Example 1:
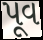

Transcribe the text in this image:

પૂવ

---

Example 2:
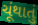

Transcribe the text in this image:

ચૂંથાતું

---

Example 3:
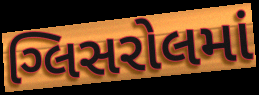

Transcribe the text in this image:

ગ્લિસરોલમાં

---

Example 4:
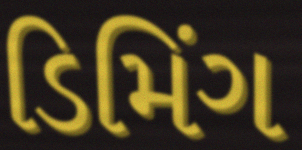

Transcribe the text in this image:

ડિમિંગ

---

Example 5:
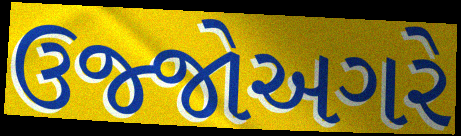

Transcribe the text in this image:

ઉજ્જોઅગરે